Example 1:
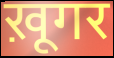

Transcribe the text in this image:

ख़ूगर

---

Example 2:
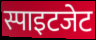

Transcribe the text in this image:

स्पाइटजेट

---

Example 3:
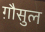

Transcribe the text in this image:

ग़ौसुल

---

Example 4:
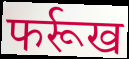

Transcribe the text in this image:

फर्रूख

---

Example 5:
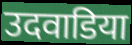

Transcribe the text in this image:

उदवाडिया